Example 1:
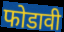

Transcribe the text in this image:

फोडावी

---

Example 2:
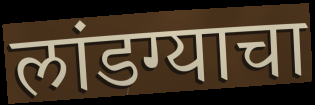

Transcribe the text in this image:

लांडग्याचा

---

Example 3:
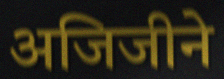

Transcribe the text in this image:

अजिजीने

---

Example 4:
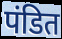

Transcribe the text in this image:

पंडित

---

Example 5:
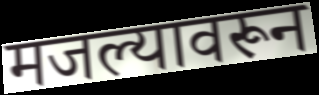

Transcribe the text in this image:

मजल्यावरून